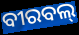
ବୀରବଲ୍